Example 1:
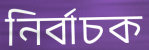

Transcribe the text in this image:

নির্বাচক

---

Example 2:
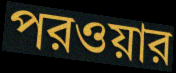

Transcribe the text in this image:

পরওয়ার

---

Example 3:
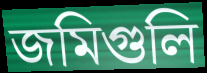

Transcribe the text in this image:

জমিগুলি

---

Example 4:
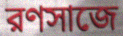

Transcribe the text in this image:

রণসাজে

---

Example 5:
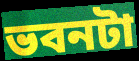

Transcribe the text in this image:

ভবনটা